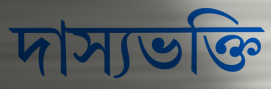
দাস্যভক্তি